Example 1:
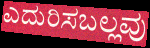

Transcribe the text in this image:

ಎದುರಿಸಬಲ್ಲವು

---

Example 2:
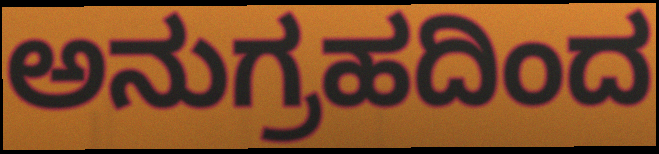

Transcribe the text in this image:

ಅನುಗ್ರಹದಿಂದ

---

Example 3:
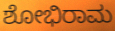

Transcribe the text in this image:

ಶೋಭಿರಾಮ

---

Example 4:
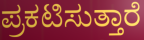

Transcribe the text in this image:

ಪ್ರಕಟಿಸುತ್ತಾರೆ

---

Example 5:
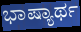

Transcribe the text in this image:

ಭಾಷ್ಯಾರ್ಥ